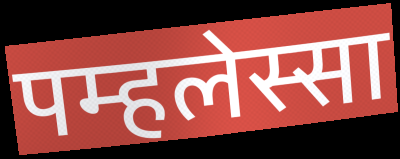
पम्हलेस्सा